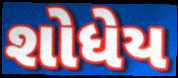
શોધેય